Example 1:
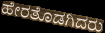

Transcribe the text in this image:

ಹೇರತೊಡಗಿದರು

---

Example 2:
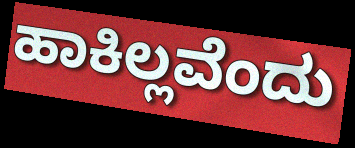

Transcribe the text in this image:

ಹಾಕಿಲ್ಲವೆಂದು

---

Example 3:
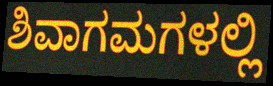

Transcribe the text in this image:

ಶಿವಾಗಮಗಳಲ್ಲಿ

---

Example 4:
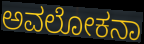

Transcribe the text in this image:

ಅವಲೋಕನಾ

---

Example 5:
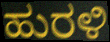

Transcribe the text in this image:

ಹುರಳಿ